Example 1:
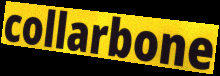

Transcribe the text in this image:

collarbone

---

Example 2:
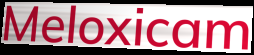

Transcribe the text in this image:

Meloxicam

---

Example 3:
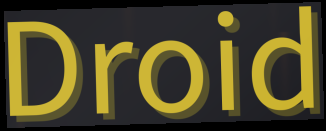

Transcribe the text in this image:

Droid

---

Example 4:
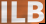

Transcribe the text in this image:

ILB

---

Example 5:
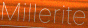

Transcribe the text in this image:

Millerite